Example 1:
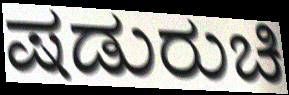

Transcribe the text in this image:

ಷಡುರುಚಿ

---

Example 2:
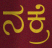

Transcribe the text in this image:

ನಕ್ರೆ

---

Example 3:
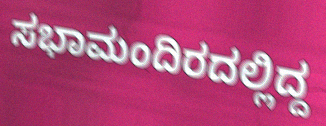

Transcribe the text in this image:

ಸಭಾಮಂದಿರದಲ್ಲಿದ್ದ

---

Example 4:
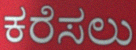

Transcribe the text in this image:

ಕರೆಸಲು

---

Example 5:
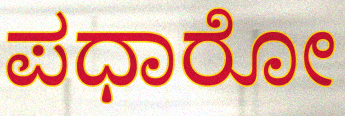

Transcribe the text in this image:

ಪಧಾರೋ